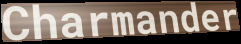
Charmander